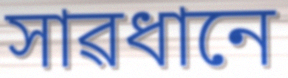
সাৱধানে